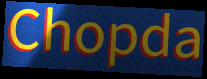
Chopda